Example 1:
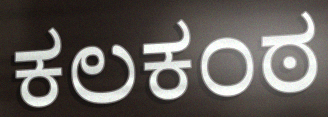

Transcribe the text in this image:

ಕಲಕಂಠ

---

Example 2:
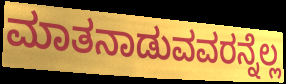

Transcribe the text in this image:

ಮಾತನಾಡುವವರನ್ನೆಲ್ಲ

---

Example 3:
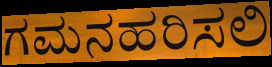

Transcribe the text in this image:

ಗಮನಹರಿಸಲಿ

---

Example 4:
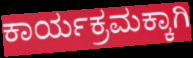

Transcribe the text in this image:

ಕಾರ್ಯಕ್ರಮಕ್ಕಾಗಿ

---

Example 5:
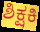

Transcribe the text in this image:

ಶಿಕ್ಷಕಿ